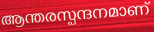
ആന്തരസ്പന്ദനമാണ്